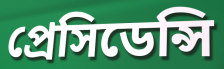
প্রেসিডেন্সি